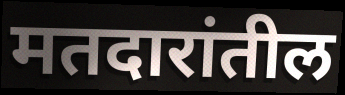
मतदारांतील